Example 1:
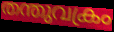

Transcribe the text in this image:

തന്തുവക്രം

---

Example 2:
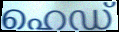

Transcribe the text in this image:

ഹെഡ്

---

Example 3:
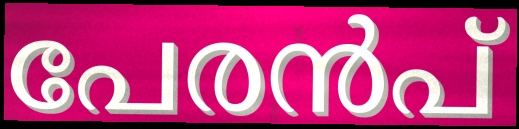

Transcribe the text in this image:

പേരൻപ്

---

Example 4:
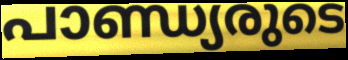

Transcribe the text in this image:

പാണ്ഡ്യരുടെ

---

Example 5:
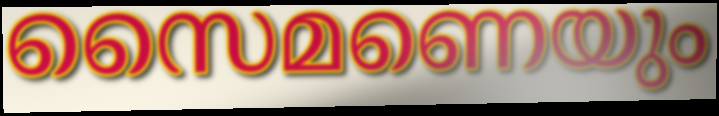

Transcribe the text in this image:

സൈമണെയും